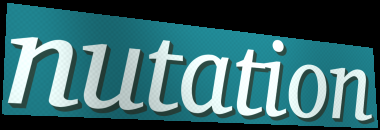
nutation